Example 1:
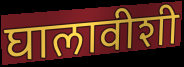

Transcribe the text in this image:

घालावीशी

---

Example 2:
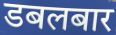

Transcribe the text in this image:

डबलबार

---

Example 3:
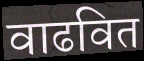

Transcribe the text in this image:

वाढवित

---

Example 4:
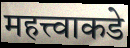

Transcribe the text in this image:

महत्त्वाकडे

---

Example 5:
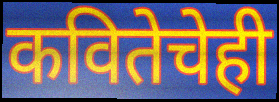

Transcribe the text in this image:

कवितेचेही